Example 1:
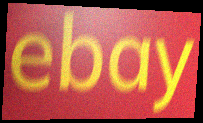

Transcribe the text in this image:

ebay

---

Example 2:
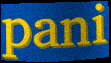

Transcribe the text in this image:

pani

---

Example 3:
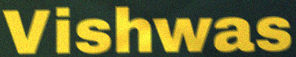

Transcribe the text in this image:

Vishwas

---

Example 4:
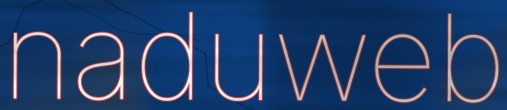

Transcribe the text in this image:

naduweb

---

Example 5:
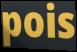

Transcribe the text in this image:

pois